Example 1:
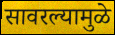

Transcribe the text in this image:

सावरल्यामुळे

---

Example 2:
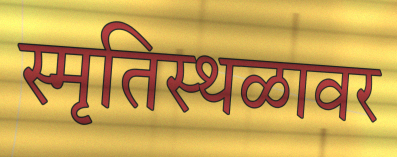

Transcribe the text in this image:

स्मृतिस्थळावर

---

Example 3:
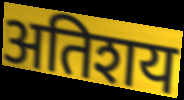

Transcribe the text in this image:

अतिशय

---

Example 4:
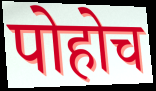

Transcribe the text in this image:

पोहोच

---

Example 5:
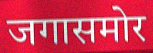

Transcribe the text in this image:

जगासमोर